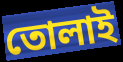
তোলাই